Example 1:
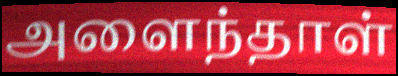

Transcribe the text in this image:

அளைந்தாள்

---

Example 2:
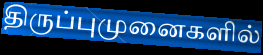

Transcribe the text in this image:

திருப்புமுனைகளில்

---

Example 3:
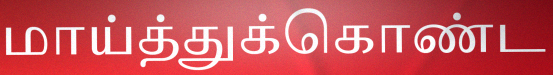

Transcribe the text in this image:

மாய்த்துக்கொண்ட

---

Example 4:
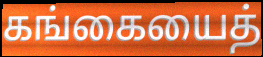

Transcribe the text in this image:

கங்கையைத்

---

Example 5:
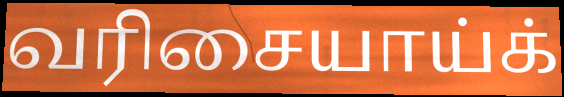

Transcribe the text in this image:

வரிசையாய்க்